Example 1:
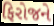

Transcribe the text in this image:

ફિરોજને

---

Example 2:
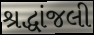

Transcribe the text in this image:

શ્રદ્ધાંજલી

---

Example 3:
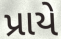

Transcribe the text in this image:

પ્રાયે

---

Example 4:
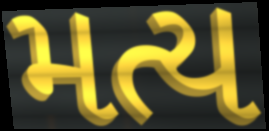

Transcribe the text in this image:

મત્ય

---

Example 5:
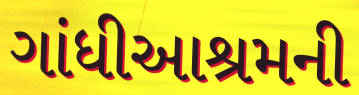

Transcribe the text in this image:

ગાંધીઆશ્રમની